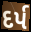
દર્પ